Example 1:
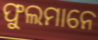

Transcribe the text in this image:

ଫୁଲମାନେ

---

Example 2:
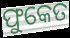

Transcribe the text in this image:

ଫୁକେତ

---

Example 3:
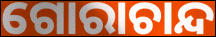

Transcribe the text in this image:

ଗୋରାଚାନ୍ଦ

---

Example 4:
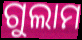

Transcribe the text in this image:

ଗୁଲାମ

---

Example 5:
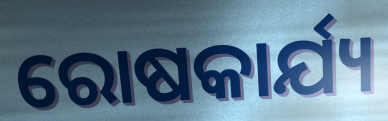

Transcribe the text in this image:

ରୋଷକାର୍ଯ୍ୟ